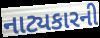
નાટ્યકારની